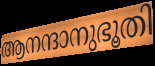
ആനന്ദാനുഭൂതി